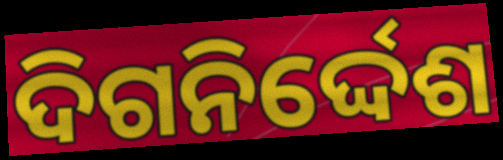
ଦିଗନିର୍ଦ୍ଦେଶ